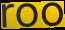
roo